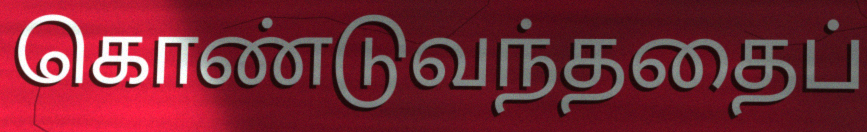
கொண்டுவந்ததைப்